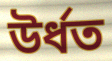
উৰ্ধত